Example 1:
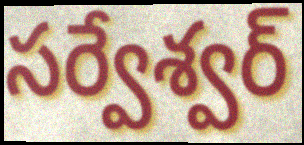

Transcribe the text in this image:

సర్వేశ్వర్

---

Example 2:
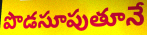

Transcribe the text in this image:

పొడసూపుతూనే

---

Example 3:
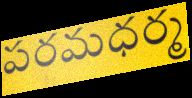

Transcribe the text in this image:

పరమధర్మ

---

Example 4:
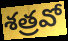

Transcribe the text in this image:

శత్రవో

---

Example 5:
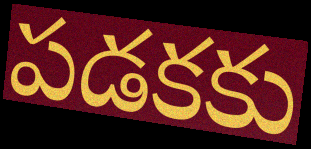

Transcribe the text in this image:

పడకకు